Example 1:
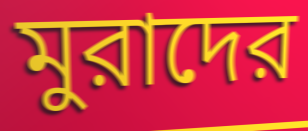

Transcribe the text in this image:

মুরাদের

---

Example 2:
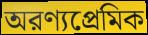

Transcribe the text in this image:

অরণ্যপ্রেমিক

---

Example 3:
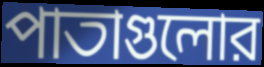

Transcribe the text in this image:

পাতাগুলোর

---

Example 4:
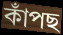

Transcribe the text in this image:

কাঁপছ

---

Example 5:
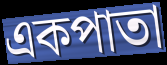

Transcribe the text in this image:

একপাতা